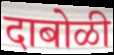
दाबोळी